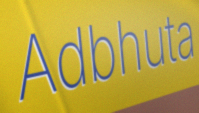
Adbhuta